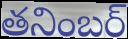
తనింబర్